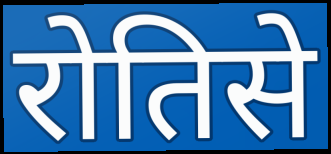
रोतिसे